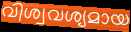
വിശ്വവശ്യമായ